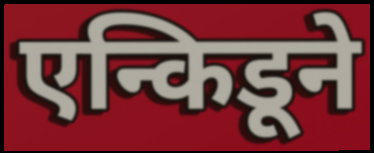
एन्किडूने